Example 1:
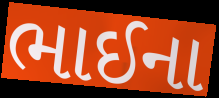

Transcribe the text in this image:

ભાઈના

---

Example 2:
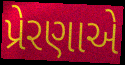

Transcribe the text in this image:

પ્રેરણાએ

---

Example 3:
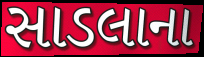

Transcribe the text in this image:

સાડલાના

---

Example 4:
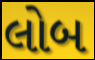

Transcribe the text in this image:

લોબ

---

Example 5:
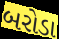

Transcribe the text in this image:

બરોડા